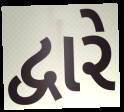
દ્વારે